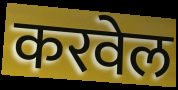
करवेल